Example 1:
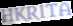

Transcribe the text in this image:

HKRITA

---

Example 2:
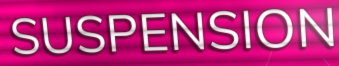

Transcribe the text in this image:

SUSPENSION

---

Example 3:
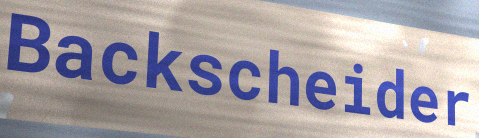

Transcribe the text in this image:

Backscheider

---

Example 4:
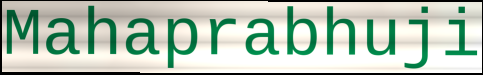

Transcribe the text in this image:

Mahaprabhuji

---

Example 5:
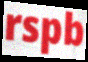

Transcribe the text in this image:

rspb